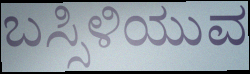
ಬಸ್ಸಿಳಿಯುವ